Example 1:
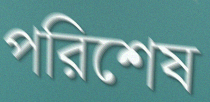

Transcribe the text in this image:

পরিশেষ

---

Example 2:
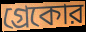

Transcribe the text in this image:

গ্রেকোর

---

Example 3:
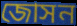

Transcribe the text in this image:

জোসন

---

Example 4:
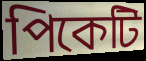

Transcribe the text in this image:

পিকেটি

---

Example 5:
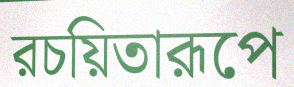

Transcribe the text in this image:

রচয়িতারূপে